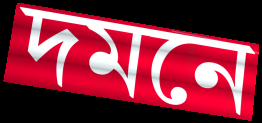
দমনে